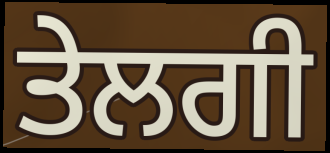
ਤੇਲਗੀ